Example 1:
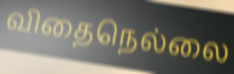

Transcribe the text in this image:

விதைநெல்லை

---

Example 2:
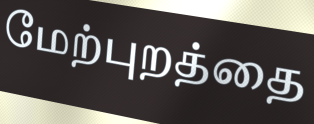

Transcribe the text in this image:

மேற்புறத்தை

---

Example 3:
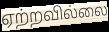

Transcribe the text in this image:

ஏற்றவில்லை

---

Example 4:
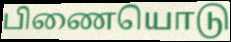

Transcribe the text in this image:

பிணையொடு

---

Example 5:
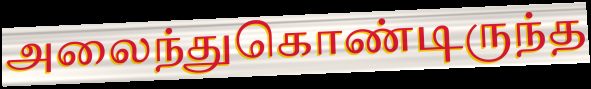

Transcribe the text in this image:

அலைந்துகொண்டிருந்த